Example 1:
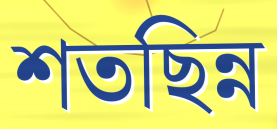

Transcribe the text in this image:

শতছিন্ন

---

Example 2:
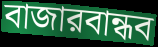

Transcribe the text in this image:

বাজারবান্ধব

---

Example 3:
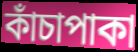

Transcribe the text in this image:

কাঁচাপাকা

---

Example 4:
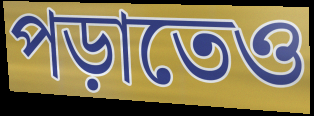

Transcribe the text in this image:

পড়াতেও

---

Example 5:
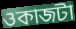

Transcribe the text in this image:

ওকাজটা